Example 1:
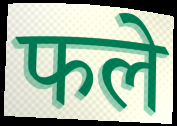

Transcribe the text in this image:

फले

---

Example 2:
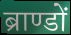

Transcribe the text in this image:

ब्राण्डों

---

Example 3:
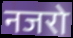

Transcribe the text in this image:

नजरो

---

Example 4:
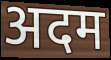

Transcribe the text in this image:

अदम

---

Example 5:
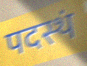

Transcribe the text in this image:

पदस्थं